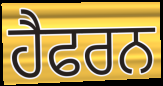
ਹੈਫਰਨ